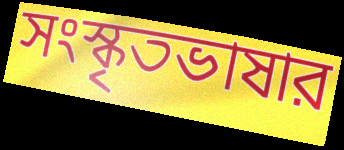
সংস্কৃতভাষার